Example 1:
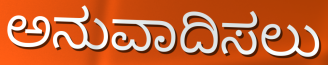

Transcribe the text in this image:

ಅನುವಾದಿಸಲು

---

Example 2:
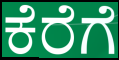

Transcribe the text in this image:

ಕೆರೆಗೆ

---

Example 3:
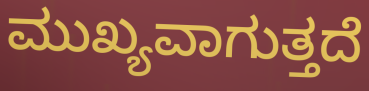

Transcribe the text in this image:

ಮುಖ್ಯವಾಗುತ್ತದೆ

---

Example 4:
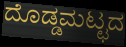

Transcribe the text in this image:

ದೊಡ್ಡಮಟ್ಟದ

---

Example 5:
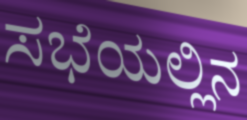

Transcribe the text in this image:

ಸಭೆಯಲ್ಲಿನ